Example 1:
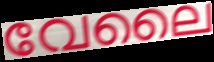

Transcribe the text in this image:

വേലൈ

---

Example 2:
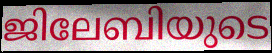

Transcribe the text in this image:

ജിലേബിയുടെ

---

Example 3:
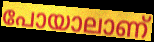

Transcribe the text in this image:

പോയാലാണ്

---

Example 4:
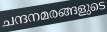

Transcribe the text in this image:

ചന്ദനമരങ്ങളുടെ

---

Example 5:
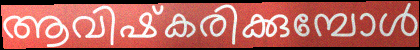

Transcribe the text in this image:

ആവിഷ്‌കരിക്കുമ്പോൾ